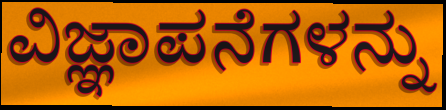
ವಿಜ್ಞಾಪನೆಗಳನ್ನು